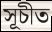
সূচীত